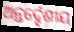
ଅନ୍ତର୍ଦ୍ଦେଶୀୟ